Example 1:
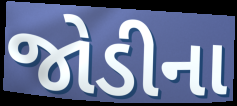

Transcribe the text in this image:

જોડીના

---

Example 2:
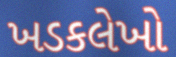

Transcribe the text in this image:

ખડકલેખો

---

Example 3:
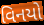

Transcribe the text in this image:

વિનયો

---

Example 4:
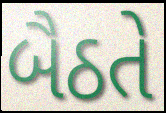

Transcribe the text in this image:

બૈઠતે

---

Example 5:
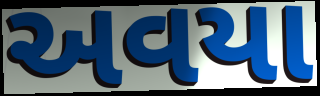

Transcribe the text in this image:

અવયા